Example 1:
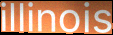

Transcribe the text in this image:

illinois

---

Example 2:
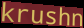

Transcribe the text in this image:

krushn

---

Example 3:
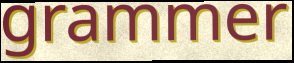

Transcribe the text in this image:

grammer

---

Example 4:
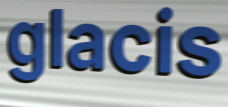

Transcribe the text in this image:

glacis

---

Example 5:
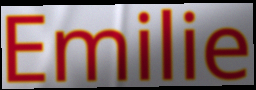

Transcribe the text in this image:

Emilie